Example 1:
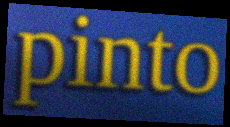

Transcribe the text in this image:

pinto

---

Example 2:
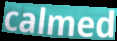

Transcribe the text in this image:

calmed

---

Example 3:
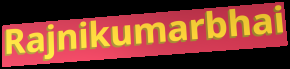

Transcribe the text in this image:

Rajnikumarbhai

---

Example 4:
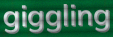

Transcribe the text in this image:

giggling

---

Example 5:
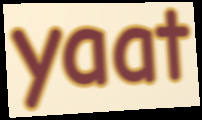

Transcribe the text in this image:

yaat